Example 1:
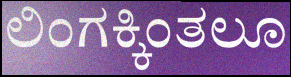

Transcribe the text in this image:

ಲಿಂಗಕ್ಕಿಂತಲೂ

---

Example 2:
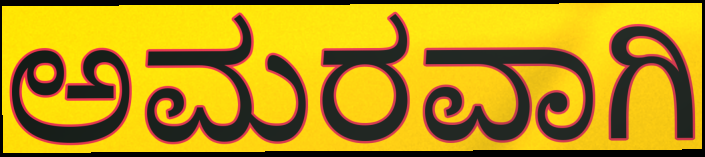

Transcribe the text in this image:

ಅಮರವಾಗಿ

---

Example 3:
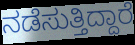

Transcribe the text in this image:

ನಡೆಸುತ್ತಿದ್ದಾರೆ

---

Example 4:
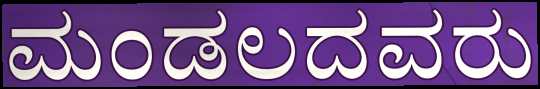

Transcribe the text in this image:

ಮಂಡಲದವರು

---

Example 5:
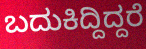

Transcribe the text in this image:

ಬದುಕಿದ್ದಿದ್ದರೆ